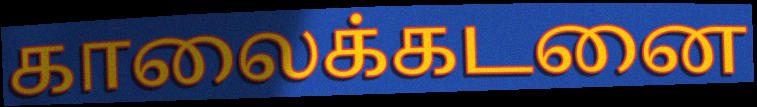
காலைக்கடனை